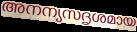
അനന്യസദൃശമായ